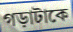
গড়াটাকে